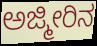
ಅಜ್ಮೀರಿನ